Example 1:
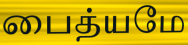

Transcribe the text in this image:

பைத்யமே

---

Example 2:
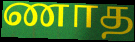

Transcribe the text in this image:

ணாத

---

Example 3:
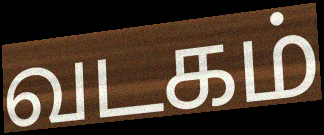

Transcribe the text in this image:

வடகம்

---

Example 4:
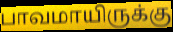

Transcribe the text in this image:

பாவமாயிருக்கு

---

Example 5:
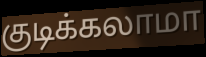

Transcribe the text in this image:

குடிக்கலாமா